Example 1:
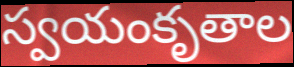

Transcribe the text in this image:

స్వయంకృతాల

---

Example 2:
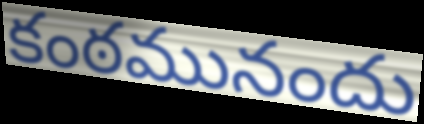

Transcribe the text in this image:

కంఠమునందు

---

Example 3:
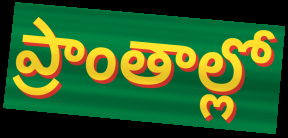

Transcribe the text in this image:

ప్రాంతాల్లో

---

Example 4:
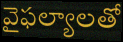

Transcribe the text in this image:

వైఫల్యాలతో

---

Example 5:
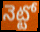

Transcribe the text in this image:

నెట్టో